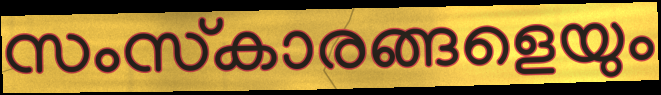
സംസ്‌കാരങ്ങളെയും